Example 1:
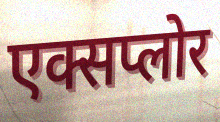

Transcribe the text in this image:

एक्सप्लोर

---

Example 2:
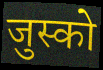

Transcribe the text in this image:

जुस्को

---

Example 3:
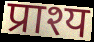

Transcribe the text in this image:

प्राश्य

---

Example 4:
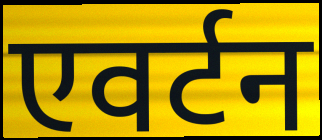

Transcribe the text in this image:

एवर्टन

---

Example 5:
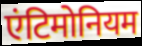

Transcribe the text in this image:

एंटिमोनियम